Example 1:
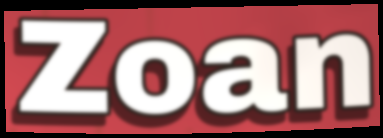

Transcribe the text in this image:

Zoan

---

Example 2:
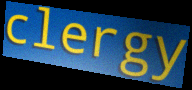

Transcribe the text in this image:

clergy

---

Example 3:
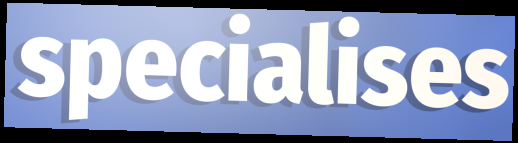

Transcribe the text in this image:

specialises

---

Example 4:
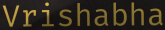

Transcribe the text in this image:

Vrishabha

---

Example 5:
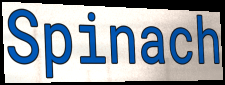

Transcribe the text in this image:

Spinach